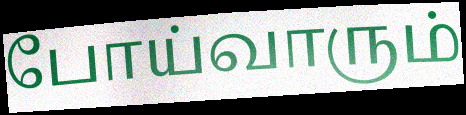
போய்வாரும்